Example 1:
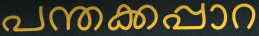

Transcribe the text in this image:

പന്തക്കപ്പാറ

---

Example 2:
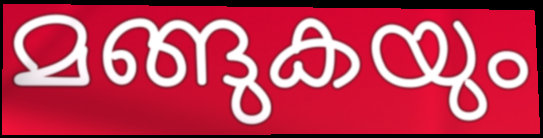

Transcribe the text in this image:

മങ്ങുകയും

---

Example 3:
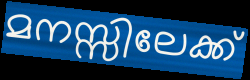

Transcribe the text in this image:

മനസ്സിലേക്ക്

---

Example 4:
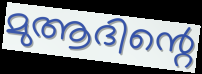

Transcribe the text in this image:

മുആദിന്റെ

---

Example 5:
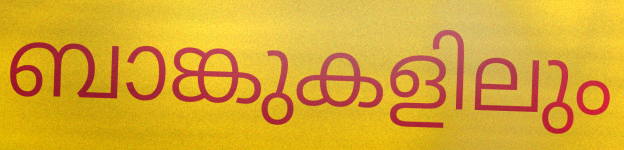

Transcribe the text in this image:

ബാങ്കുകളിലും